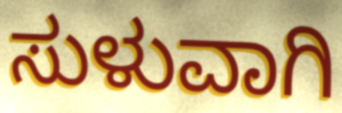
ಸುಳುವಾಗಿ